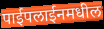
पाईपलाईनमधील